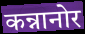
कन्नानोर